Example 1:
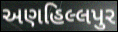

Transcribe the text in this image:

અણહિલ્લપુર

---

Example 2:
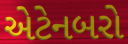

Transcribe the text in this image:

એટેનબરો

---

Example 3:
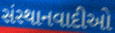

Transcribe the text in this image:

સંસ્થાનવાદીઓ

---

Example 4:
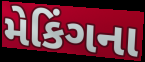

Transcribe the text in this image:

મેકિંગના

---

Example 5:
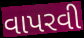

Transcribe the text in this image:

વાપરવી